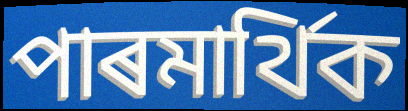
পাৰমাৰ্থিক